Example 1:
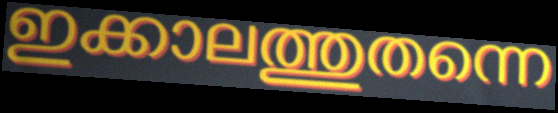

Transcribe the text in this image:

ഇക്കാലത്തുതന്നെ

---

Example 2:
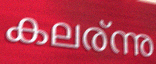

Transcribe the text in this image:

കലര്ന്നു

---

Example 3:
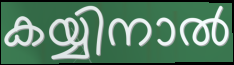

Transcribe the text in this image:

കയ്യിനാൽ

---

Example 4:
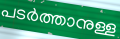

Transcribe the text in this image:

പടർത്താനുള്ള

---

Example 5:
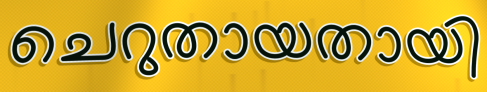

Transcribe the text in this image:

ചെറുതായതായി